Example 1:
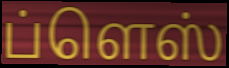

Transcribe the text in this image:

ப்ளெஸ்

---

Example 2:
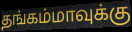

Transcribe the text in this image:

தங்கம்மாவுக்கு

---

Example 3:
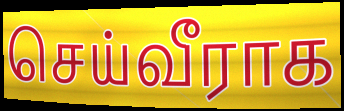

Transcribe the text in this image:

செய்வீராக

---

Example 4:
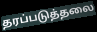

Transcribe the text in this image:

தரப்படுத்தலை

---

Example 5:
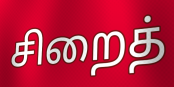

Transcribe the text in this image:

சிறைத்